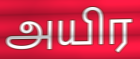
அயிர